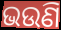
ଭଉଣି